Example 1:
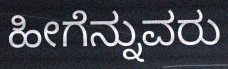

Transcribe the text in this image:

ಹೀಗೆನ್ನುವರು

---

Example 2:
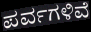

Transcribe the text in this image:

ಪರ್ವಗಳಿವೆ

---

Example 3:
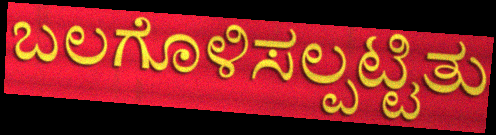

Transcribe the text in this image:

ಬಲಗೊಳಿಸಲ್ಪಟ್ಟಿತು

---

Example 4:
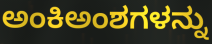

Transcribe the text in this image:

ಅಂಕಿಅಂಶಗಳನ್ನು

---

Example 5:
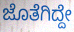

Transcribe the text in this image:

ಜೊತೆಗಿದ್ದೇ